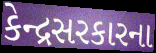
કેન્દ્રસરકારના